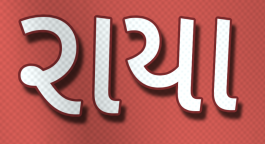
રાયા